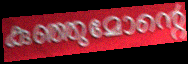
കുഞ്ഞുമോന്റെ